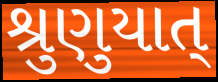
શ્રુણુયાત્